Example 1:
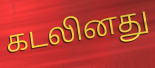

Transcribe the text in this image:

கடலினது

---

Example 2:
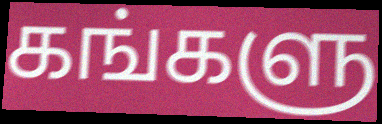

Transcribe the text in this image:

கங்களு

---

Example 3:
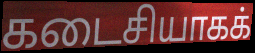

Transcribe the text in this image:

கடைசியாகக்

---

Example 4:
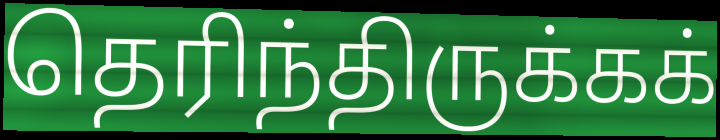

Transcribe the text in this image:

தெரிந்திருக்கக்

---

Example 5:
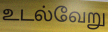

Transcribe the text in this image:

உடல்வேறு